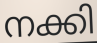
നക്കി